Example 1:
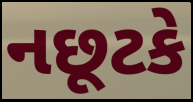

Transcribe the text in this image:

નછૂટકે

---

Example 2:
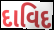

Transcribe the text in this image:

દાવિદ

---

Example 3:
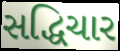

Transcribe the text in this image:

સદ્ધિચાર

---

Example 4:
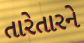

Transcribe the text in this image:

તારેતારને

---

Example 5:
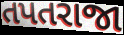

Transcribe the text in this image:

તપતરાજા